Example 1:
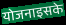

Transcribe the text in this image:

योजनाइसके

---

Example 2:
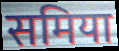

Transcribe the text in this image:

समिया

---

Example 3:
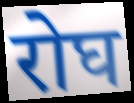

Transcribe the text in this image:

रोघ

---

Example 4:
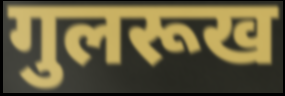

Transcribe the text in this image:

गुलरूख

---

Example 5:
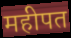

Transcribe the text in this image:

महीपत